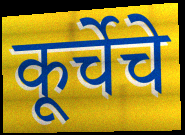
कूर्चेचे